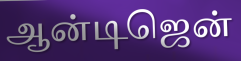
ஆன்டிஜென்